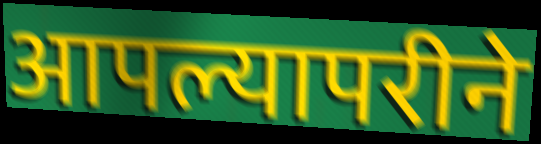
आपल्यापरीने